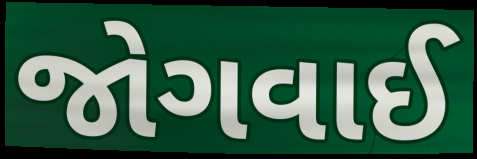
જોગવાઈ